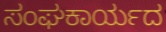
ಸಂಘಕಾರ್ಯದ